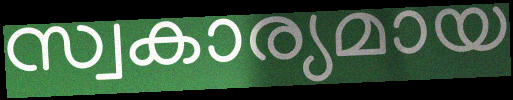
സ്വകാര്യമായ